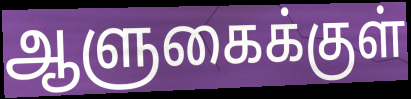
ஆளுகைக்குள்